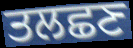
ਤਲਛਣ